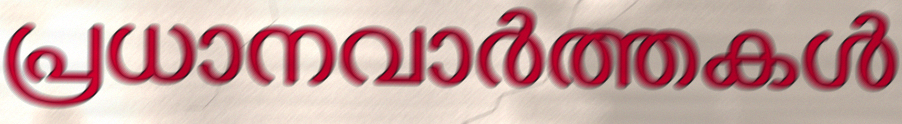
പ്രധാനവാർത്തകൾ